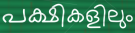
പക്ഷികളിലും